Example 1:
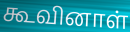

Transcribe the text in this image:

கூவினாள்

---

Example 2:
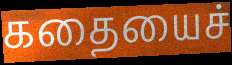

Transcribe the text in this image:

கதையைச்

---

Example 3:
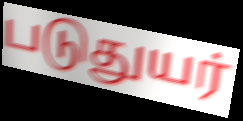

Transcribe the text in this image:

படுதுயர்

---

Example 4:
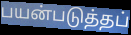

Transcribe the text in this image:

பயன்படுத்தப்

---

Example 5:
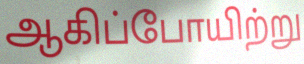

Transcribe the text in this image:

ஆகிப்போயிற்று